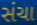
સંચા